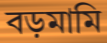
বড়মামি